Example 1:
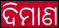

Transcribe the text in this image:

ଦିମାଣ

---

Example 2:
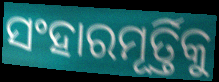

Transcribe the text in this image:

ସଂହାରମୂର୍ତ୍ତିକୁ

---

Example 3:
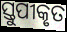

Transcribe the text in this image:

ସ୍ତୁପୀକୃତ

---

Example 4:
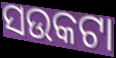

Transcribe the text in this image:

ସଉକଟା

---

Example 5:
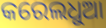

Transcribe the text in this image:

କରେଲଧୁଆ